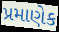
પ્રમાણેક